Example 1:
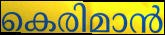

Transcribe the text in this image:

കെരിമാൻ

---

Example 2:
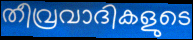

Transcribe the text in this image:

തീവ്രവാദികളുടെ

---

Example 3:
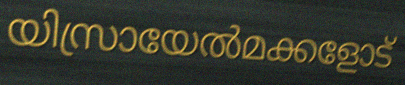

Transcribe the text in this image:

യിസ്രായേൽമക്കളോട്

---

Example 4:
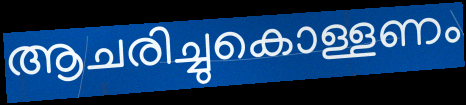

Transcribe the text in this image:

ആചരിച്ചുകൊള്ളണം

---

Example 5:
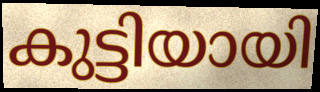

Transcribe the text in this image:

കുട്ടിയായി